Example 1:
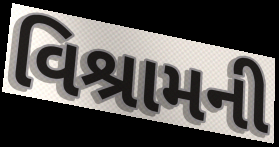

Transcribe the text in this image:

વિશ્રામની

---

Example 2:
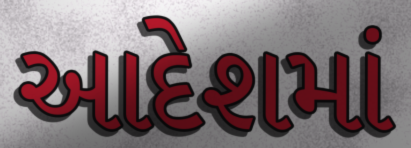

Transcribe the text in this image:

આદેશમાં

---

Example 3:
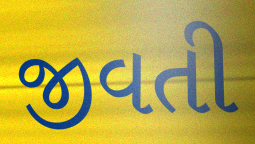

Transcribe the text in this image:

જીવતી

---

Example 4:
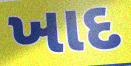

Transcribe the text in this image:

ખાદ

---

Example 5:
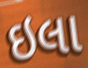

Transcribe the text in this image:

ઇલા